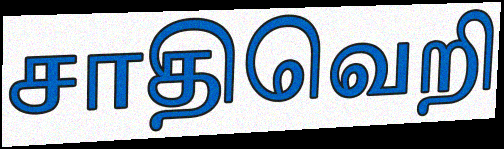
சாதிவெறி